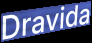
Dravida